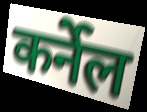
कर्नेल